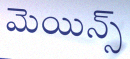
మెయిన్స్